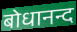
बोधानन्द